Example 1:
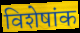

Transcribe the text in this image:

विशेषांक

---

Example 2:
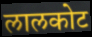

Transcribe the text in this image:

लालकोट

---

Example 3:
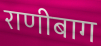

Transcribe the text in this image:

राणीबाग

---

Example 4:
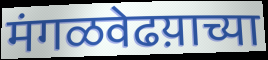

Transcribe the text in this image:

मंगळवेढय़ाच्या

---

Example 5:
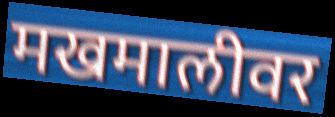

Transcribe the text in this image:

मखमालीवर